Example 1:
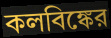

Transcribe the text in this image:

কলবিঙ্কের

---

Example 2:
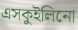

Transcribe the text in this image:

এসকুইলিনো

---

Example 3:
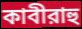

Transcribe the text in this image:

কাবীরাহু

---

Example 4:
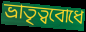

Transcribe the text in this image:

ভ্রাতৃত্ববোধে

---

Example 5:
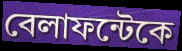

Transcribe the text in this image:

বেলাফন্টেকে